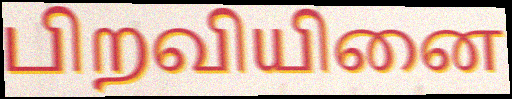
பிறவியினை